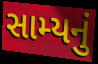
સામ્યનું